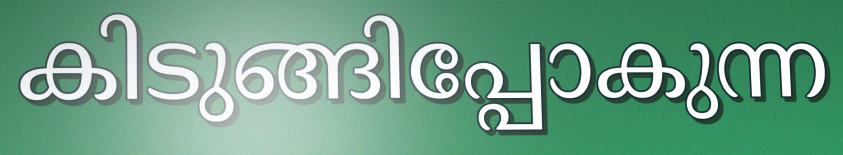
കിടുങ്ങിപ്പോകുന്ന